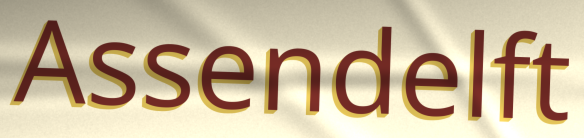
Assendelft